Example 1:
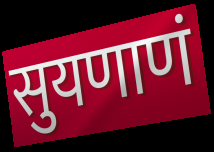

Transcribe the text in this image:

सुयणाणं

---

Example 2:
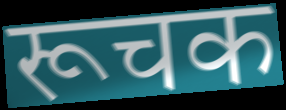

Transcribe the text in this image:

रूचक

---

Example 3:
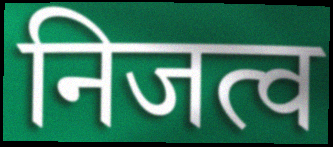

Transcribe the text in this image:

निजत्व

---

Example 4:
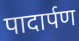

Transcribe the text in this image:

पादार्पण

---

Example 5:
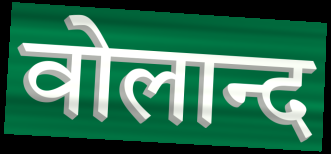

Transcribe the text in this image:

वोलान्द